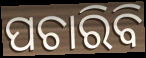
ପଚାରିବି